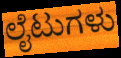
ಲೈಟುಗಳು